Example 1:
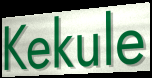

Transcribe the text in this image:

Kekule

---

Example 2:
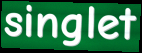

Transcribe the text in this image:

singlet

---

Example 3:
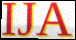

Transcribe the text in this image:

IJA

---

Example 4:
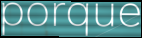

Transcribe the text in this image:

porque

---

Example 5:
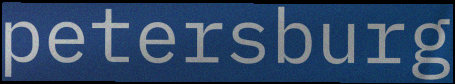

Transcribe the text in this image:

petersburg